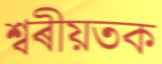
শ্বৰীয়তক